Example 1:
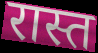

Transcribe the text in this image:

रास्त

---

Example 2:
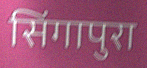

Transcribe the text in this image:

सिंगापुरा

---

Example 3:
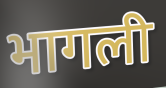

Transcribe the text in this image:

भागली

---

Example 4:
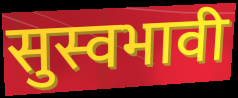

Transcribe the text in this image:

सुस्वभावी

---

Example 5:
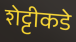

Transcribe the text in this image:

शेट्टीकडे